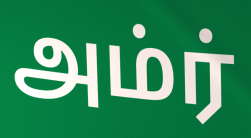
அம்ர்